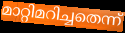
മാറ്റിമറിച്ചതെന്ന്